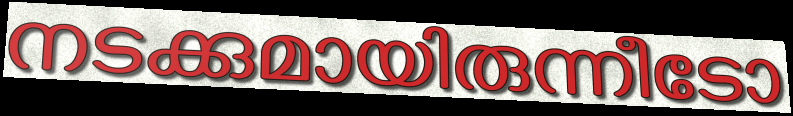
നടക്കുമായിരുന്നീടോ